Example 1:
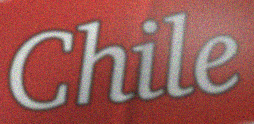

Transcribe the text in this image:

Chile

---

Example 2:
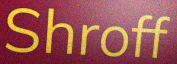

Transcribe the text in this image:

Shroff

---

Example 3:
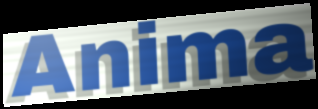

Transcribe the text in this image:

Anima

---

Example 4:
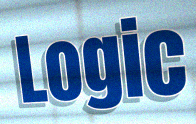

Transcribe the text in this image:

Logic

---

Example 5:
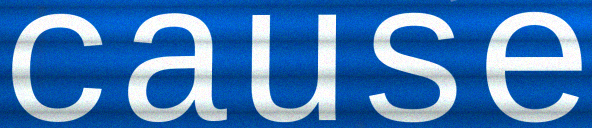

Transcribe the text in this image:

cause